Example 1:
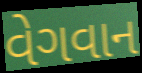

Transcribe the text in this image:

વેગવાન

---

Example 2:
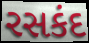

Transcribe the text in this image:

રસકંદ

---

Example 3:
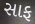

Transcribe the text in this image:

સાફ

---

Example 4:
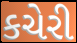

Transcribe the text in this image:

કચેરી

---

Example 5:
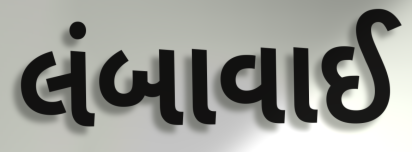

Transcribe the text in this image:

લંબાવાઈ